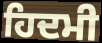
ਹਿਦਮੀ